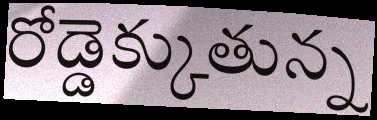
రోడ్డెక్కుతున్న